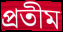
প্রতীম